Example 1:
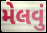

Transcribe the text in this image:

મેલવું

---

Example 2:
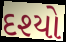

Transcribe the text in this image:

દશ્યો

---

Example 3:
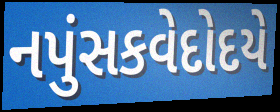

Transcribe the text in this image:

નપુંસકવેદોદયે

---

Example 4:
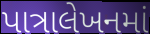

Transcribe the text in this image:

પાત્રાલેખનમાં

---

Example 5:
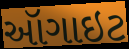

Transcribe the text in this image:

ઑગાઇટ